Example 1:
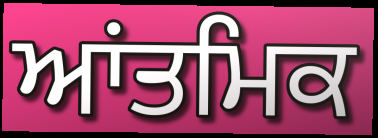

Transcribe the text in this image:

ਆਂਤਮਿਕ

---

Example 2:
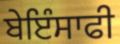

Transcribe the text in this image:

ਬੇਇੰਸਾਫੀ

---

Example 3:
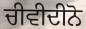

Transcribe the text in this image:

ਚੀਵੀਦੀਨੋ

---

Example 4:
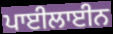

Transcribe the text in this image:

ਪਾਈਲਾਈਨ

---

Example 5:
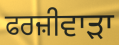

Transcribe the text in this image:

ਫਰਜ਼ੀਵਾਡ਼ਾ